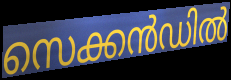
സെക്കൻഡിൽ